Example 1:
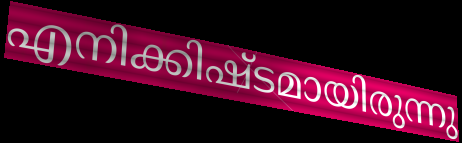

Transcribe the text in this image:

എനിക്കിഷ്ടമായിരുന്നു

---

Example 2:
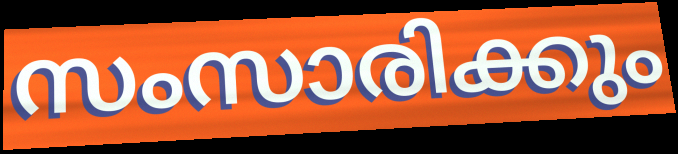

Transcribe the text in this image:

സംസാരിക്കും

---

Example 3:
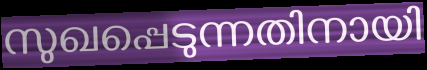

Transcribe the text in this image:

സുഖപ്പെടുന്നതിനായി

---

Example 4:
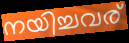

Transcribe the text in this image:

നയിച്ചവര്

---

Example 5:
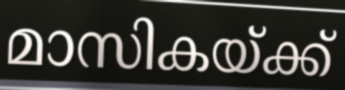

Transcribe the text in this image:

മാസികയ്ക്ക്